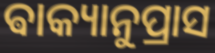
ଵାକ୍ୟାନୁପ୍ରାସ